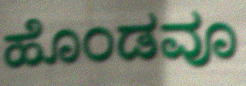
ಹೊಂಡವೂ